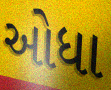
ઓધા